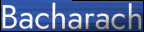
Bacharach